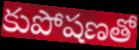
కుపోషణతో